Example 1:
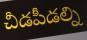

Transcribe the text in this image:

చీడపీడల్ని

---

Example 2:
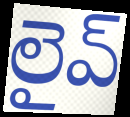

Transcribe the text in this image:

లైవ్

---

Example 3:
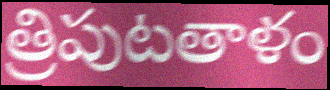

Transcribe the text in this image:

త్రిపుటతాళం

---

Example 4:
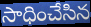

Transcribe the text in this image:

సాధించేసిన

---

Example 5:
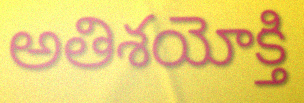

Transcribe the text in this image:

అతిశయోక్తి